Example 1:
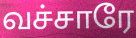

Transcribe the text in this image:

வச்சாரே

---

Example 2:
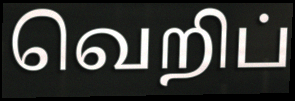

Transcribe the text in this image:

வெறிப்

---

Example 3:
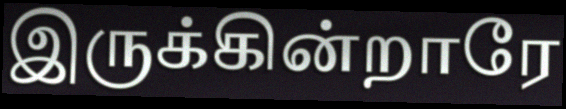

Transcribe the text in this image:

இருக்கின்றாரே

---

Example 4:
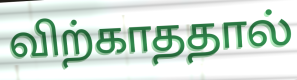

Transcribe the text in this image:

விற்காததால்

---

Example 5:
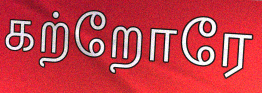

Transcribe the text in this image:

கற்றோரே